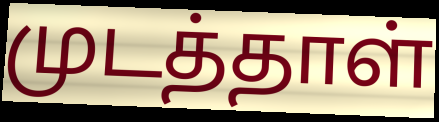
முடத்தாள்